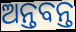
ଅନ୍ତବନ୍ତ